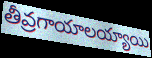
తీవ్రగాయాలయ్యాయి